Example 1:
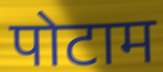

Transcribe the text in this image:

पोटाम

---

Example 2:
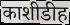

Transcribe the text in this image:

काशीडीह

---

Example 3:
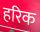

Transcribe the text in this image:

हरिक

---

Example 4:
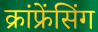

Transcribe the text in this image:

क्रांफ्रेंसिंग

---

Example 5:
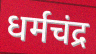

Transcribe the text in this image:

धर्मचंद्र